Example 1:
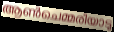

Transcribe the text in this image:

ആൺചെമ്മരിയാടു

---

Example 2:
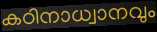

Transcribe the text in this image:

കഠിനാധ്വാനവും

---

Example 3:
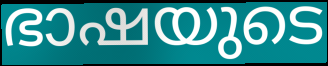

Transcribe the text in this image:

ഭാഷയുടെ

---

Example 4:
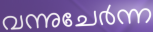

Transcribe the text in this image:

വന്നുചേർന്ന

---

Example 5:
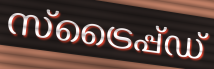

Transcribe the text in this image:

സ്ട്രൈപ്പ്ഡ്